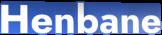
Henbane